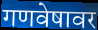
गणवेषावर